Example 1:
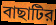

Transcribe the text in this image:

বাছাটির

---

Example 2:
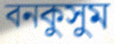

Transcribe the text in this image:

বনকুসুম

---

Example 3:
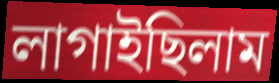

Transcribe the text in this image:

লাগাইছিলাম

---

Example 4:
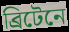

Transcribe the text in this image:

ব্রিটেনে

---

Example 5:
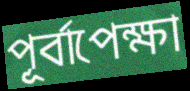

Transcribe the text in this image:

পূর্বাপেক্ষা